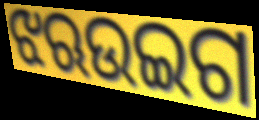
ଝଋଉଇଗ